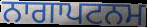
ਨਾਗਾਪਟਨਮ